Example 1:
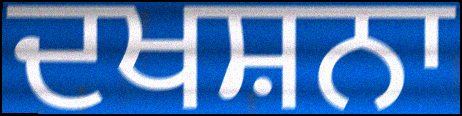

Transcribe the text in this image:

ਦਖਸ਼ਨਾ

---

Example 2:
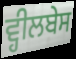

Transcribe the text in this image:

ਵ੍ਹੀਲਬੇਸ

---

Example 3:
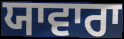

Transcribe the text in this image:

ਯਾਵਾਰਾ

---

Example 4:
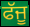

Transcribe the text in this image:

ਫੱਜੂ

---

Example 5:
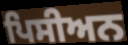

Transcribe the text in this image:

ਪਿਸੀਅਨ